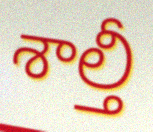
శాల్తీ